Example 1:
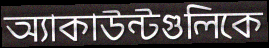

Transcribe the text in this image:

অ্যাকাউন্টগুলিকে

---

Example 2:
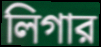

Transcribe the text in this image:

লিগার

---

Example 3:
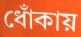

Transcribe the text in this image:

ধোঁকায়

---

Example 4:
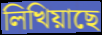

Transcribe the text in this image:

লিখিয়াছে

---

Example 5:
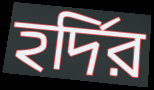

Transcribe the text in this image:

হর্দির